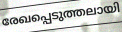
രേഖപ്പെടുത്തലായി